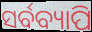
ସର୍ବବ୍ୟାପି